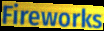
Fireworks